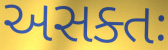
અસક્તઃ